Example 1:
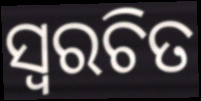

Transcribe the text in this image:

ସ୍ୱରଚିତ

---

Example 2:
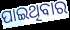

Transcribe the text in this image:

ପାଇଥିବାର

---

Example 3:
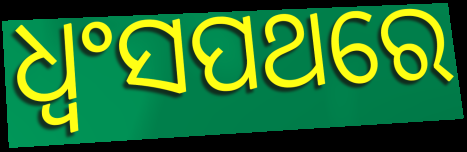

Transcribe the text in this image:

ଧ୍ବଂସପଥରେ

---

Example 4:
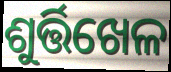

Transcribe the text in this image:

ଶୁର୍ତ୍ତିଖେଳ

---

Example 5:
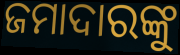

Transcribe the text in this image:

ଜମାଦାରଙ୍କୁ